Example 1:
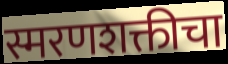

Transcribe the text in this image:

स्मरणशक्तीचा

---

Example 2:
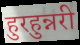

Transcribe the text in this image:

हुरहुन्नरी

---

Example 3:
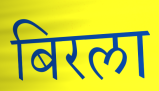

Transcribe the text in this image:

बिरला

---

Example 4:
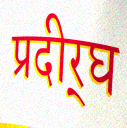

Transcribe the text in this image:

प्रदीर्घ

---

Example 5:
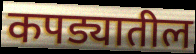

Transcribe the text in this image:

कपड्यातील